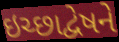
ઇચ્છાદ્વેષને